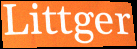
Littger